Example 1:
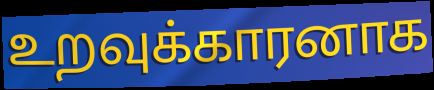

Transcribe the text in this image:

உறவுக்காரனாக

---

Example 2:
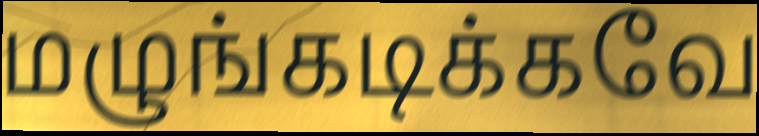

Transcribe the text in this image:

மழுங்கடிக்கவே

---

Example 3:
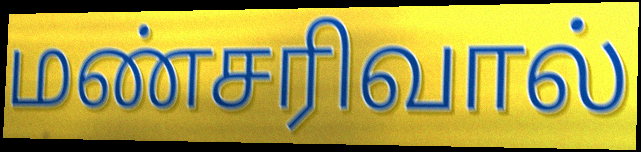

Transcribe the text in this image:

மண்சரிவால்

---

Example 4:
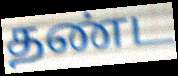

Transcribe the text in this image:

தண்ட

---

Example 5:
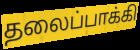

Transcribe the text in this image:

தலைப்பாக்கி